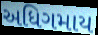
અધિગમાય